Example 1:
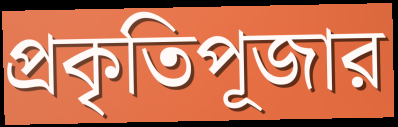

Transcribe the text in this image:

প্রকৃতিপূজার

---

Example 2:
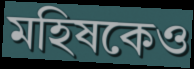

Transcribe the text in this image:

মহিষকেও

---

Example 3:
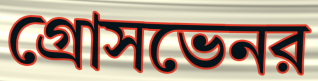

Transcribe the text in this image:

গ্রোসভেনর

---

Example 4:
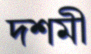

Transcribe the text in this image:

দশমী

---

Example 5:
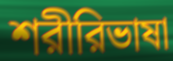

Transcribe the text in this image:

শরীরিভাষা